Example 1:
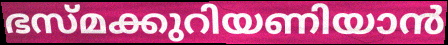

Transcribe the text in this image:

ഭസ്മക്കുറിയണിയാൻ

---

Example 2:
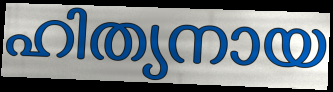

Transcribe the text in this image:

ഹിത്യനായ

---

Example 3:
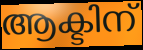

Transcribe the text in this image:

ആക്ടിന്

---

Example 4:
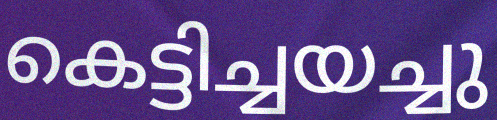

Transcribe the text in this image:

കെട്ടിച്ചയച്ചു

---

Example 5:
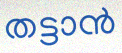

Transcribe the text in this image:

തട്ടാൻ